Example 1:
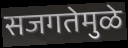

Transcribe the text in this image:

सजगतेमुळे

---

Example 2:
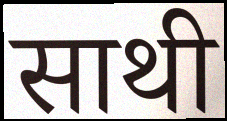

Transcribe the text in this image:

साथी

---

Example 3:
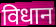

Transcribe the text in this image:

विधान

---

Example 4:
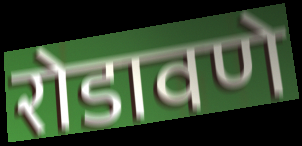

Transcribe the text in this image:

रोडावणे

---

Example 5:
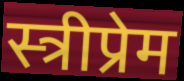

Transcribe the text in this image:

स्त्रीप्रेम